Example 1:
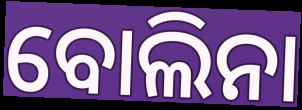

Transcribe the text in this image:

ବୋଲିନା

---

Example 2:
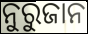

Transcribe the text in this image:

ନୁରୁଜାନ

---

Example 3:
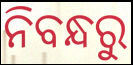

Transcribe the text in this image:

ନିବନ୍ଧରୁ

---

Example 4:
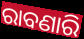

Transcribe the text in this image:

ରାବଣାରି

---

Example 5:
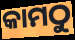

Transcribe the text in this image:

କାମଠୁ